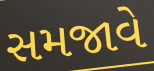
સમજાવે